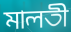
মালতী